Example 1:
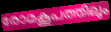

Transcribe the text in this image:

രോമകൂപത്തിലും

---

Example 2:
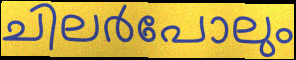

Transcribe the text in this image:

ചിലർപോലും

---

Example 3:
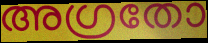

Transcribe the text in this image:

അഗ്രതോ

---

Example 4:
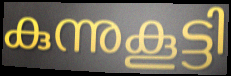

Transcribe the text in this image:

കുന്നുകൂട്ടി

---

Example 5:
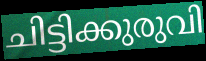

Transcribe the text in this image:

ചിട്ടിക്കുരുവി